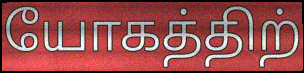
யோகத்திற்